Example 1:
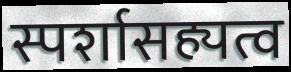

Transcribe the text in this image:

स्पर्शासह्यत्व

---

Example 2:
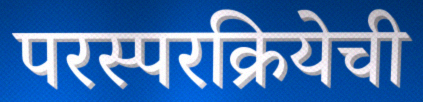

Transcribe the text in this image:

परस्परक्रियेची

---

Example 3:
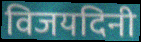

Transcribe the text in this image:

विजयदिनी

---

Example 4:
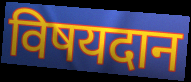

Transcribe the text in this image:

विषयदान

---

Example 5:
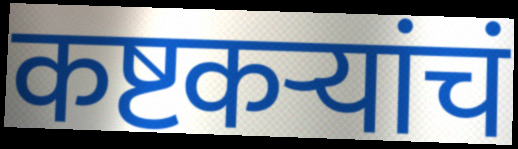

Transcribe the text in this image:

कष्टकऱ्यांचं